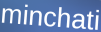
minchati